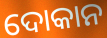
ଦୋକାନ